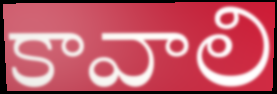
కావాలి